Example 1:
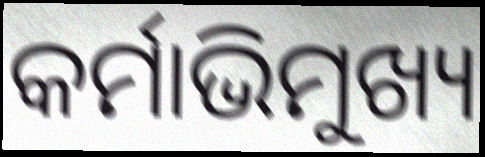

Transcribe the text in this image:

କର୍ମାଭିମୁଖ୍ୟ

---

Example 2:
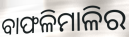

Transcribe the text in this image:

ବାଫଳିମାଳିର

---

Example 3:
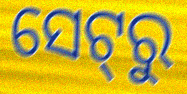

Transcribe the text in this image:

ସେଟ୍‌ରୁ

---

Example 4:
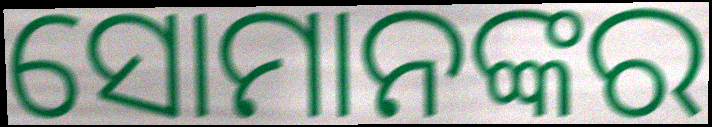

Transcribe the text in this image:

ସୋମାନଙ୍କର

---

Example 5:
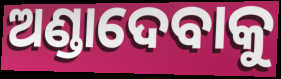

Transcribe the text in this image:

ଅଣ୍ଡାଦେବାକୁ